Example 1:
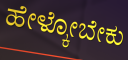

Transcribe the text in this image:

ಹೇಳ್ಕೋಬೇಕು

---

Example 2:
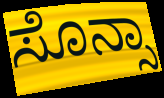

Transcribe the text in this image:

ಸೊನ್ಸಾ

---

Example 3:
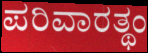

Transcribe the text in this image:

ಪರಿವಾರತ್ಥಂ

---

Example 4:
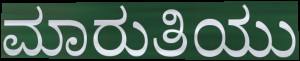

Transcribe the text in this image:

ಮಾರುತಿಯು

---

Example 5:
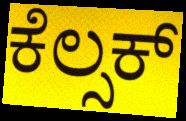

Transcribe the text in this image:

ಕೆಲ್ಸಕ್